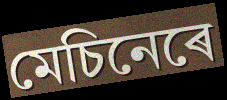
মেচিনেৰে